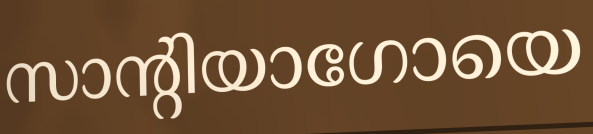
സാന്റിയാഗോയെ